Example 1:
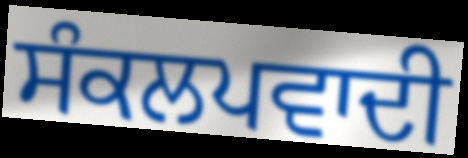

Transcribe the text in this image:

ਸੰਕਲਪਵਾਦੀ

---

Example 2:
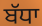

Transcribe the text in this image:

ਬੱਧਾ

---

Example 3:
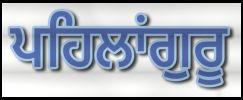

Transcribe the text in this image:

ਪਹਿਲਾਂਗੁਰੂ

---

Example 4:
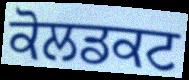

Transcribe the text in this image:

ਕੋਲਡਕਟ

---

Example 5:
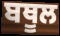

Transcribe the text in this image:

ਬਥੂਲ